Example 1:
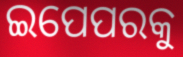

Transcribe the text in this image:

ଇପେପରକୁ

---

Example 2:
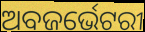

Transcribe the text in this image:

ଅବଜର୍ଭେଟରୀ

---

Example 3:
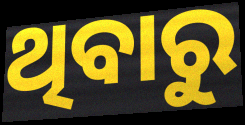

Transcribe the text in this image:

ଥିବାରୁ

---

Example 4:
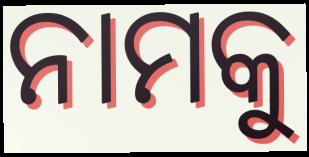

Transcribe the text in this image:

ନାମକୁ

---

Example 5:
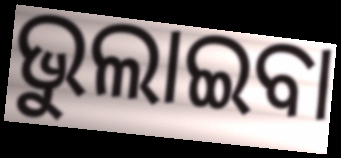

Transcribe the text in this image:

ଭୁଲାଇବା